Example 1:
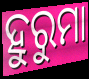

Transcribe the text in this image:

ହୁରୁମା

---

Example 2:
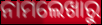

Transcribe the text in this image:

ନାମଲେଖାରୁ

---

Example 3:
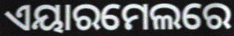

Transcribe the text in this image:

ଏୟାରମେଲରେ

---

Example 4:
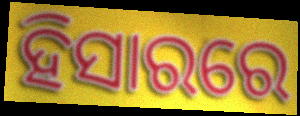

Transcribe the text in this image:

ହିସାରରେ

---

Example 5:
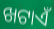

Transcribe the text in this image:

ଖଟାଏଁ